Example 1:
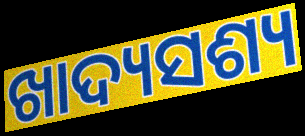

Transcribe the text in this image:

ଖାଦ୍ୟସଶ୍ୟ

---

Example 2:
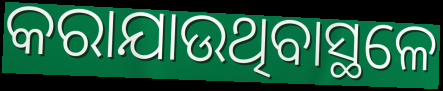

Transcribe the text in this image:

କରାଯାଉଥିବାସ୍ଥଳେ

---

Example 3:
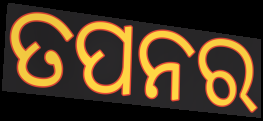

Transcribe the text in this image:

ତପନର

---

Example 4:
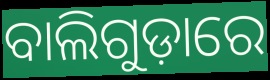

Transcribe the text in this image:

ବାଲିଗୁଡ଼ାରେ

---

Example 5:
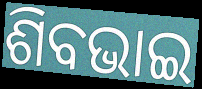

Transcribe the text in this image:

ଶିବଭାଇ